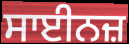
ਸਾਈਨਜ਼